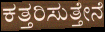
ಕತ್ತರಿಸುತ್ತೇನೆ